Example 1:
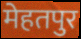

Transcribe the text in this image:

मेहतपुर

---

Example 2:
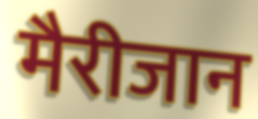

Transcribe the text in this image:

मैरीजान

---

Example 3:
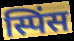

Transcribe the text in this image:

स्पिंस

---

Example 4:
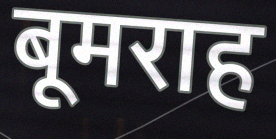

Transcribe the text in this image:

बूमराह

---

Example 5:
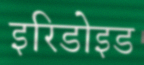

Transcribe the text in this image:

इरिडोइड